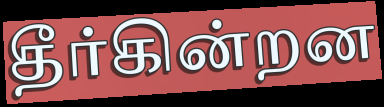
தீர்கின்றன